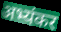
अभ्यंकर